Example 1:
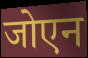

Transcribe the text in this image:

जोएन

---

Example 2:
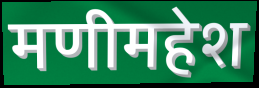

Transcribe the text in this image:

मणीमहेश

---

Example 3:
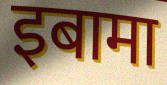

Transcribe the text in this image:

इबामा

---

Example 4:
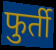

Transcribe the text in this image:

फुर्ती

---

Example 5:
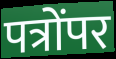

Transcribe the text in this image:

पत्रोंपर